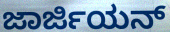
ಜಾರ್ಜಿಯನ್